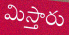
మిస్తారు